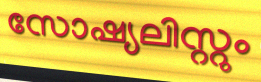
സോഷ്യലിസ്റ്റും